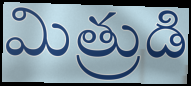
మిత్రుడి